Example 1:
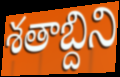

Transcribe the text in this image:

శతాబ్దిని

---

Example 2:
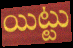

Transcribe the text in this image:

యిట్టు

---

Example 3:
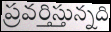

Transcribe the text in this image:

ప్రవర్తిస్తున్నది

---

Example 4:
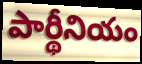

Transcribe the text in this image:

పార్థీనియం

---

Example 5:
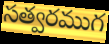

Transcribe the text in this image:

సత్వరముగ